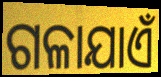
ଗଳାଯାଏଁ